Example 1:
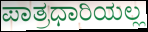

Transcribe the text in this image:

ಪಾತ್ರಧಾರಿಯಲ್ಲ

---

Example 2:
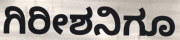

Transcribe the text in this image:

ಗಿರೀಶನಿಗೂ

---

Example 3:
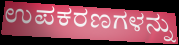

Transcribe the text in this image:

ಉಪಕರಣಗಳನ್ನು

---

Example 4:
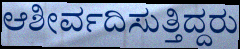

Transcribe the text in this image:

ಆಶೀರ್ವದಿಸುತ್ತಿದ್ದರು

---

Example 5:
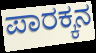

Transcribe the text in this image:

ಪಾರಕ್ಕನ